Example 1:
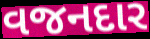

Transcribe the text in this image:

વજનદાર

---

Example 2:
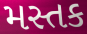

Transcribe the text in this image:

મસ્તક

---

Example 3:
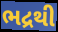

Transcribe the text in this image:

ભદ્રથી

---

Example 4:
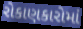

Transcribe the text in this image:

રોકાણકારોમાં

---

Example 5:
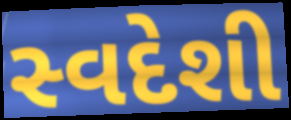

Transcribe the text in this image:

સ્વદેશી